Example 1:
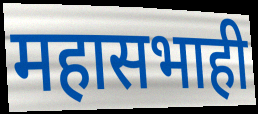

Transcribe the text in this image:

महासभाही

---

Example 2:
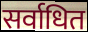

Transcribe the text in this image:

सर्वाधित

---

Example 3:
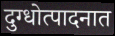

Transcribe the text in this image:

दुग्धोत्पादनात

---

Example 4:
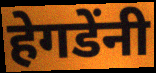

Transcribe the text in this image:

हेगडेंनी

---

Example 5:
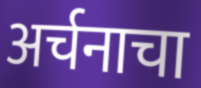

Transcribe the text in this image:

अर्चनाचा